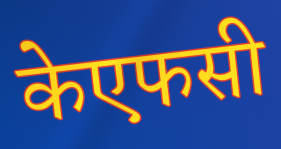
केएफसी